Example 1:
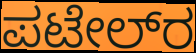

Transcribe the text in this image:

ಪಟೇಲ್‌ರ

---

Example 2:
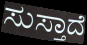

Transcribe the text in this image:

ಸುಸ್ತಾದೆ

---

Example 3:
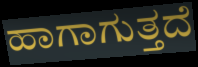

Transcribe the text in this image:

ಹಾಗಾಗುತ್ತದೆ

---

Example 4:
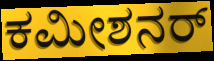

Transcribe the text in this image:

ಕಮೀಶನರ್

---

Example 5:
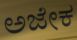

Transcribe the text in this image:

ಅಜೇಕ